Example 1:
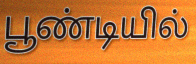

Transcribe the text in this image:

பூண்டியில்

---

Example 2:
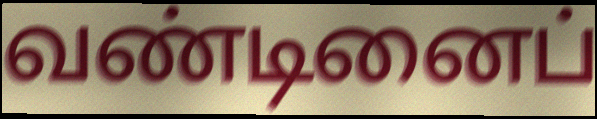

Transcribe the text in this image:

வண்டினைப்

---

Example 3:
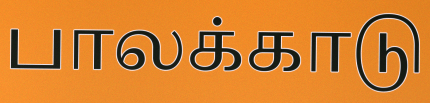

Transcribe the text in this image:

பாலக்காடு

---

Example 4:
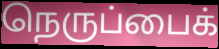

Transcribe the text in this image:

நெருப்பைக்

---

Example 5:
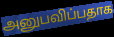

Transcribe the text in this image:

அனுபவிப்பதாக